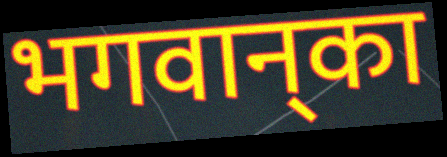
भगवान्‌का